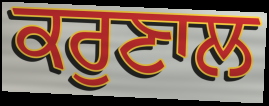
ਕਰੁਣਾਲ